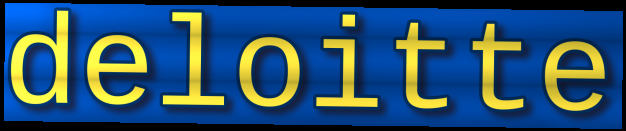
deloitte